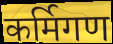
कर्मिगण